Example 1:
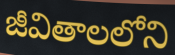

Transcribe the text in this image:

జీవితాలలోని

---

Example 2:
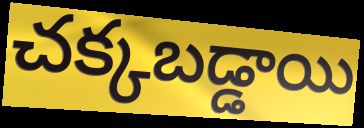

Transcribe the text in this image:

చక్కబడ్డాయి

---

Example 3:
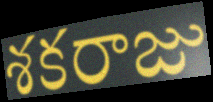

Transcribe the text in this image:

శకరాజు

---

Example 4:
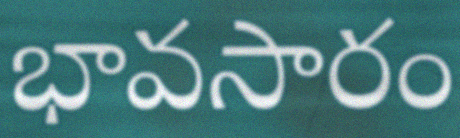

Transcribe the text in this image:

భావసారం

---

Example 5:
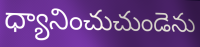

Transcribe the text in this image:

ధ్యానించుచుండెను